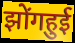
झोंगहुई